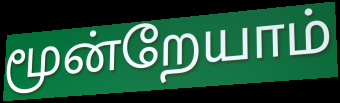
மூன்றேயாம்